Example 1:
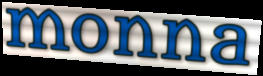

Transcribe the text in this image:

monna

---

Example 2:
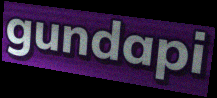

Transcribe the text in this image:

gundapi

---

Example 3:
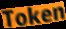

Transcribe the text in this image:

Token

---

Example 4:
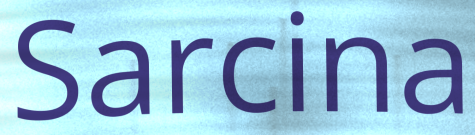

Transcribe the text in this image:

Sarcina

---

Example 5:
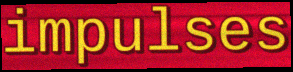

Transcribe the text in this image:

impulses